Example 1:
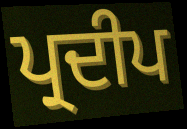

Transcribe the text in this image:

ਪ੍ਰਦੀਪ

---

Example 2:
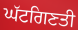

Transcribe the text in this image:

ਘੱਟਗਿਣਤੀ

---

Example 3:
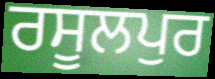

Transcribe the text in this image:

ਰਸੂਲਪੁਰ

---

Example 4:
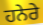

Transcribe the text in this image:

ਹਨੇਰੇ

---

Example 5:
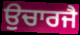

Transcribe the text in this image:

ਉਚਾਰਜੈ